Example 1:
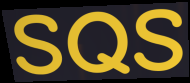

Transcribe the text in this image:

SQS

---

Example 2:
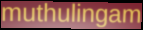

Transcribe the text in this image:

muthulingam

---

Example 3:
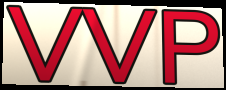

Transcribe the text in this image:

VVP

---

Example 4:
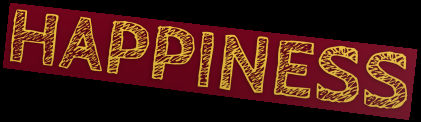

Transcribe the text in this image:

HAPPINESS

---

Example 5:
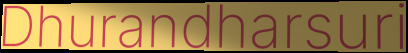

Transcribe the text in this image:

Dhurandharsuri